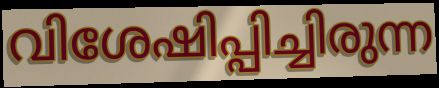
വിശേഷിപ്പിച്ചിരുന്ന